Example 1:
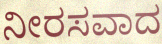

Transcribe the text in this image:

ನೀರಸವಾದ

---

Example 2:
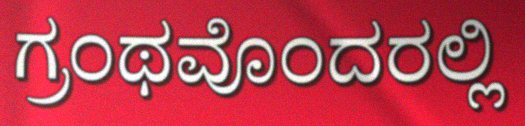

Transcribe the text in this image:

ಗ್ರಂಥವೊಂದರಲ್ಲಿ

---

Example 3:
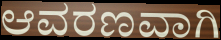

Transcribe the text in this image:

ಆವರಣವಾಗಿ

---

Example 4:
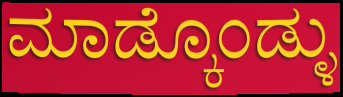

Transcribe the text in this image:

ಮಾಡ್ಕೊಂಡ್ಳು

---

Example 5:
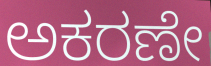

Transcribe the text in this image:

ಅಕರಣೇ